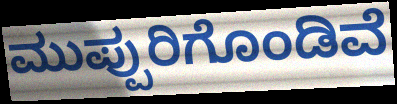
ಮುಪ್ಪುರಿಗೊಂಡಿವೆ